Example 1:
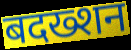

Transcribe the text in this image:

बदख्शन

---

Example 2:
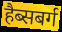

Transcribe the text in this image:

हैब्सबर्ग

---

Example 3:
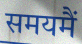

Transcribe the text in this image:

समयमैं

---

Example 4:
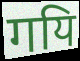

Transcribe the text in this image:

गयि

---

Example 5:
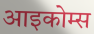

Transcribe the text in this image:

आइकोम्स